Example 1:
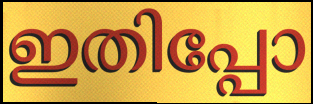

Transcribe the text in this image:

ഇതിപ്പോ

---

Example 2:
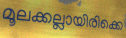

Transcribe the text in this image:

മൂലക്കല്ലായിരിക്കെ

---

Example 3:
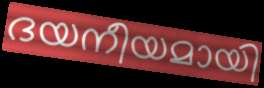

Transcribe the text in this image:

ദയനീയമായി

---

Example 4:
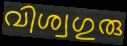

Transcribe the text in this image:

വിശ്വഗുരു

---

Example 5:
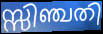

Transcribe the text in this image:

സ്സിഞ്ചതി